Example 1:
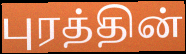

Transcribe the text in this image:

புரத்தின்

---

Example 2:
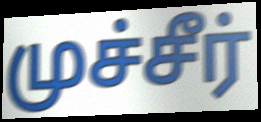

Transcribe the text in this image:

முச்சீர்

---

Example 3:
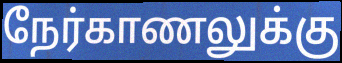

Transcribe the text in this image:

நேர்காணலுக்கு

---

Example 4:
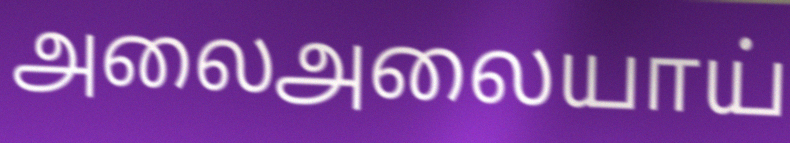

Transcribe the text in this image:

அலைஅலையாய்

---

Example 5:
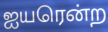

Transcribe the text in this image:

ஐயரென்ற